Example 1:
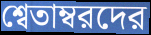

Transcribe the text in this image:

শ্বেতাম্বরদের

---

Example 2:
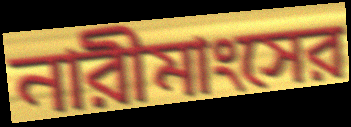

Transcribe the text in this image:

নারীমাংসের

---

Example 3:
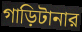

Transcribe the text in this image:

গাড়িটানার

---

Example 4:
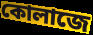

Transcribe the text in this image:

কোলাজে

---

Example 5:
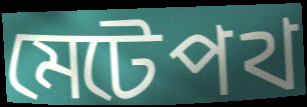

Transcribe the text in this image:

মেটেপথ